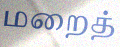
மறைத்